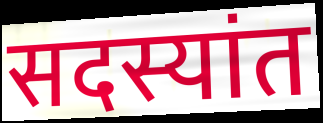
सदस्यांत